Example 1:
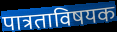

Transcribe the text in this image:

पात्रताविषयक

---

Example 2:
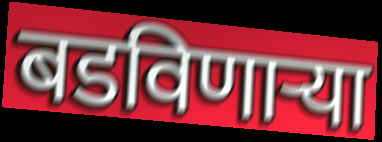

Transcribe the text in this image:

बडविणाऱ्या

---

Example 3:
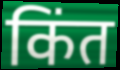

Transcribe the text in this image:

किंत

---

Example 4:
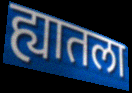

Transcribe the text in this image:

ह्यातला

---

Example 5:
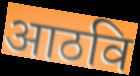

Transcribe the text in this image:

आठवि